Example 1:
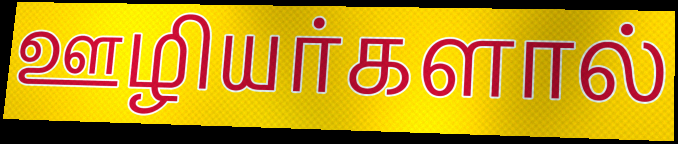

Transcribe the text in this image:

ஊழியர்களால்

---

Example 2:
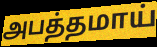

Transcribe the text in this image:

அபத்தமாய்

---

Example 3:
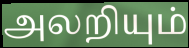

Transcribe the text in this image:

அலறியும்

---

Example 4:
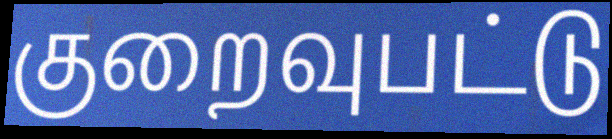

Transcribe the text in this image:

குறைவுபட்டு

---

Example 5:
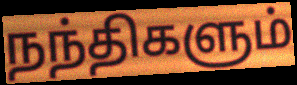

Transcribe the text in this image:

நந்திகளும்